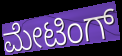
ಮೇಟಿಂಗ್